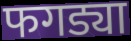
फगड्या